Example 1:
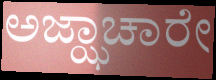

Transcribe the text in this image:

ಅಜ್ಝಾಚಾರೇ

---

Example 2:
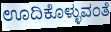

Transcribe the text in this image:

ಊದಿಕೊಳ್ಳುವಂತೆ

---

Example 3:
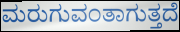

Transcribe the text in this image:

ಮರುಗುವಂತಾಗುತ್ತದೆ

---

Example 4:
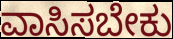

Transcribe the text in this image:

ವಾಸಿಸಬೇಕು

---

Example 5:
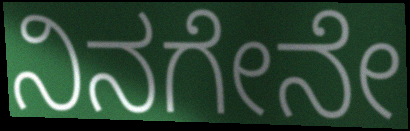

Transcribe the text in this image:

ನಿನಗೇನೇ